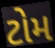
ટોમ